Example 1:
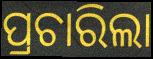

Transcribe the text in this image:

ପ୍ରଚାରିଲା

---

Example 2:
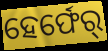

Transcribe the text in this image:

ହେର୍ଫେର୍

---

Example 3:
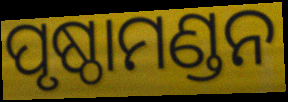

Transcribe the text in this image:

ପୃଷ୍ଠାମଣ୍ଡନ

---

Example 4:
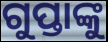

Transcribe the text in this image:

ଗୁପ୍ତାଙ୍କୁ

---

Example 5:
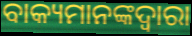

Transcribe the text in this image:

ବାକ୍ୟମାନଙ୍କଦ୍ୱାରା